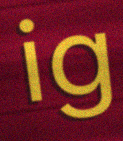
ig